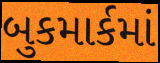
બુકમાર્કમાં